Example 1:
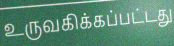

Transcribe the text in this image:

உருவகிக்கப்பட்டது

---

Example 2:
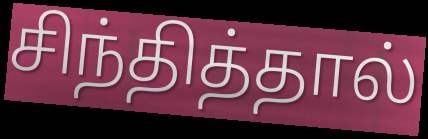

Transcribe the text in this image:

சிந்தித்தால்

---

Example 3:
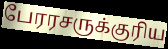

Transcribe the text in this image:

பேரரசருக்குரிய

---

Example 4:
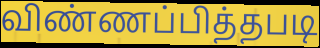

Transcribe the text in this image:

விண்ணப்பித்தபடி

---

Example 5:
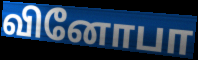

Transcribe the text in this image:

வினோபா